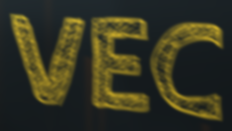
VEC